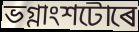
ভগ্নাংশটোৰে